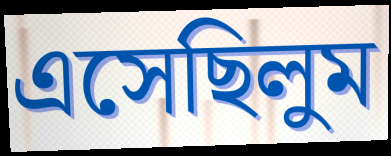
এসেছিলুম